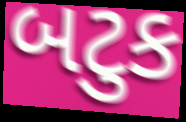
બટુક